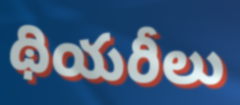
థియరీలు